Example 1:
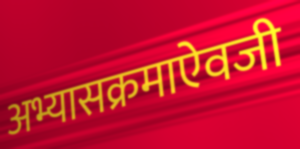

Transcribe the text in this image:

अभ्यासक्रमाऐवजी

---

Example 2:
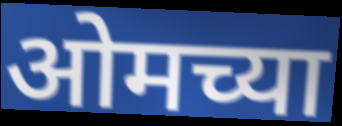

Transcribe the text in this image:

ओमच्या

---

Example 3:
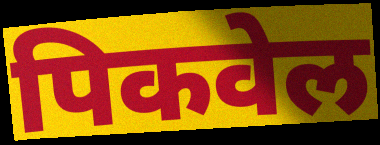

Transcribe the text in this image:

पिकवेल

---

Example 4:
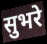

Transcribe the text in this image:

सुभरे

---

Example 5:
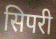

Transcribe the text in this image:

सिपरी